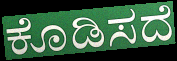
ಕೊಡಿಸದೆ